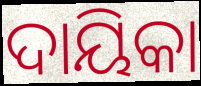
ଦାୟିକା